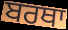
ਬਰਥਾ